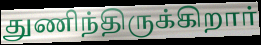
துணிந்திருக்கிறார்